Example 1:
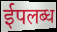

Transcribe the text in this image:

ईपलब्ध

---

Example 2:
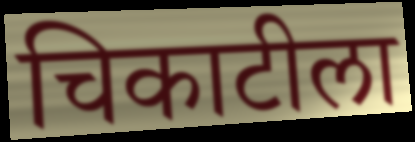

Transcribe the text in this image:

चिकाटीला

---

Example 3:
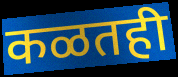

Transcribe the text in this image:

कळतही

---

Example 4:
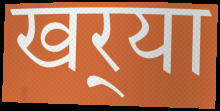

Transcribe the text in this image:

खर्या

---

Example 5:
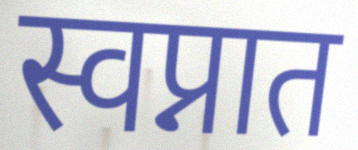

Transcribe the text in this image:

स्वप्नात